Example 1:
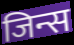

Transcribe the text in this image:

जिन्‍स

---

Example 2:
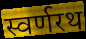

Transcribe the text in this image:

स्वर्णरथ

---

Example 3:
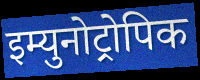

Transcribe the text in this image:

इम्युनोट्रोपिक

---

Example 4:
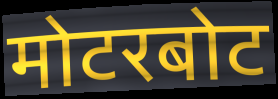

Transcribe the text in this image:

मोटरबोट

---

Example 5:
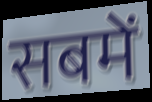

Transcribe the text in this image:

सबमें